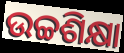
ଉଚ୍ଚଶିକ୍ଷା